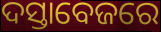
ଦସ୍ତାବେଜରେ